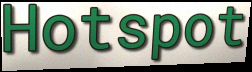
Hotspot